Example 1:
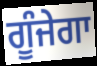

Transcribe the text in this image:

ਗੂੰਜੇਗਾ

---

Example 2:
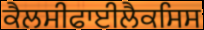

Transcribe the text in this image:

ਕੈਲਸੀਫਾਈਲੈਕਸਿਸ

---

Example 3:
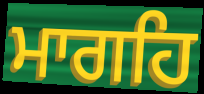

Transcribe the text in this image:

ਮਾਗਹਿ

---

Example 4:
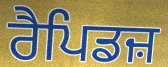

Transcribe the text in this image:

ਰੈਪਿਡਜ਼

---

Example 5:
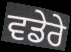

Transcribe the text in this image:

ਵਡੇਰੇ